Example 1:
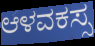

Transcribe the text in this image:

ಆಳವಕಸ್ಸ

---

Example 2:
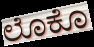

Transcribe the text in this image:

ಲೊಕೊ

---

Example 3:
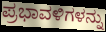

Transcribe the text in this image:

ಪ್ರಭಾವಳಿಗಳನ್ನು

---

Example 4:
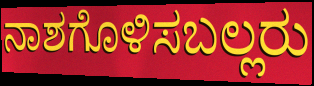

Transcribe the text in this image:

ನಾಶಗೊಳಿಸಬಲ್ಲರು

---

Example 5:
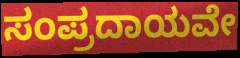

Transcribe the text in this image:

ಸಂಪ್ರದಾಯವೇ